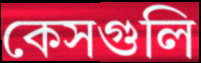
কেসগুলি